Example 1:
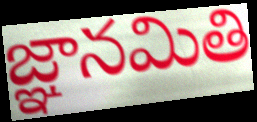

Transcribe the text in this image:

జ్ఞానమితి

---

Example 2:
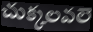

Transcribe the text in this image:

చుక్కలవలె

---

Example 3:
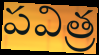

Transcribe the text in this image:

పవిత్ర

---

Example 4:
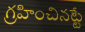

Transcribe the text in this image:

గ్రహించినట్టే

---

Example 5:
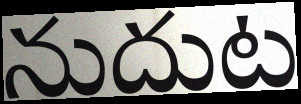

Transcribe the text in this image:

నుదుట